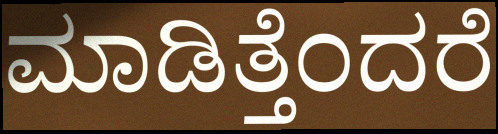
ಮಾಡಿತ್ತೆಂದರೆ